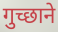
गुच्छाने